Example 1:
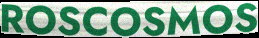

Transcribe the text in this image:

ROSCOSMOS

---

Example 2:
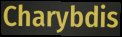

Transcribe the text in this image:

Charybdis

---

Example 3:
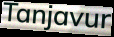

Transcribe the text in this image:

Tanjavur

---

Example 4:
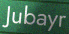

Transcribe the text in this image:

Jubayr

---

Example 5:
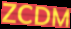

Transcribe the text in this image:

ZCDM